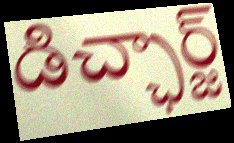
డిచ్ఛార్జ్